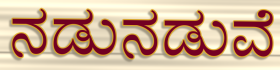
ನಡುನಡುವೆ